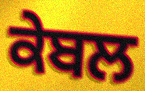
ਕੇਬਲ